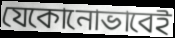
যেকোনোভাবেই